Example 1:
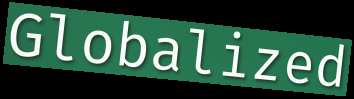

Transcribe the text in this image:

Globalized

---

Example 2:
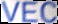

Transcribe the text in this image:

VEC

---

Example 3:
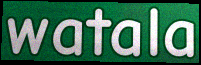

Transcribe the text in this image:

watala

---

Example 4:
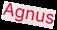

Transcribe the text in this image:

Agnus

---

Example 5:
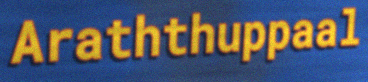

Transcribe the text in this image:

Araththuppaal